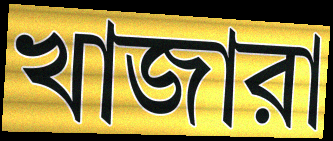
খাজারা